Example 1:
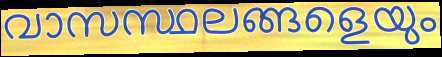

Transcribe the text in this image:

വാസസ്ഥലങ്ങളെയും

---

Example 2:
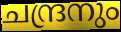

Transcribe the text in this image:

ചന്ദ്രനും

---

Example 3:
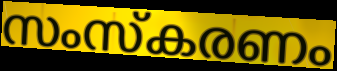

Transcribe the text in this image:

സംസ്‌കരണം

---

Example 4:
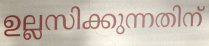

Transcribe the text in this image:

ഉല്ലസിക്കുന്നതിന്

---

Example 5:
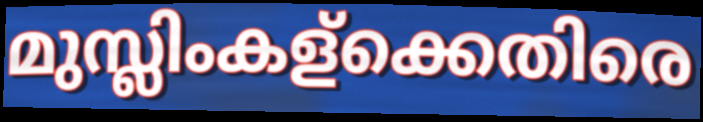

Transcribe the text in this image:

മുസ്ലിംകള്ക്കെതിരെ